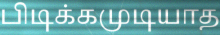
பிடிக்கமுடியாத